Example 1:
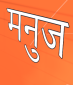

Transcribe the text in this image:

मनुज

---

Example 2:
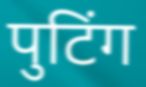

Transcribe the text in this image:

पुटिंग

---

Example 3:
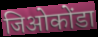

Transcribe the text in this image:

जिओकोंडा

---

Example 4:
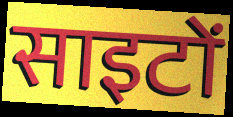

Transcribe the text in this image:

साइटों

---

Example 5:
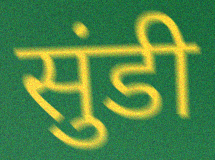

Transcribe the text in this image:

सुंडी